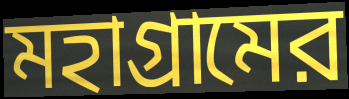
মহাগ্রামের